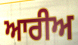
ਆਰੀਅ